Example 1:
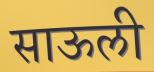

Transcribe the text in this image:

साऊली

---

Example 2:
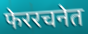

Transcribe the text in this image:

फेररचनेत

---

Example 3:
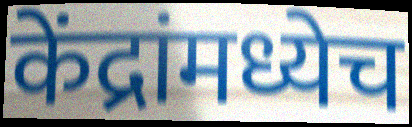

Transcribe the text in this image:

केंद्रांमध्येच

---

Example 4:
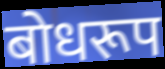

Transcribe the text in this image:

बोधरूप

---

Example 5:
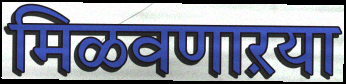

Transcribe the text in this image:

मिळवणाऱया